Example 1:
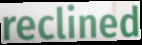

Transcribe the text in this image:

reclined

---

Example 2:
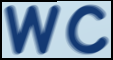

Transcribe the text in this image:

wc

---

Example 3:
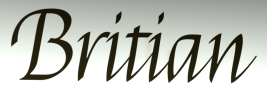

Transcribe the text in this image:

Britian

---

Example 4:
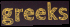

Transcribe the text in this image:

greeks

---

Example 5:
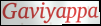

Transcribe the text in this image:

Gaviyappa